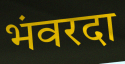
भंवरदा